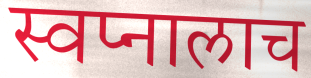
स्वप्नालाच